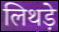
लिथड़े